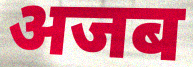
अजब